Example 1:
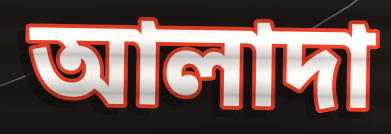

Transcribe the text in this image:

আলাদা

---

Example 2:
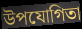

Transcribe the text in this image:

উপযোগিতা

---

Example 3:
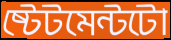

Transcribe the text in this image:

ষ্টেটমেন্টটো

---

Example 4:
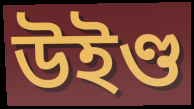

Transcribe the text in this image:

উইণ্ড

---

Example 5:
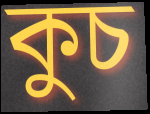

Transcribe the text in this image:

কুচ